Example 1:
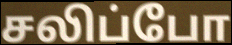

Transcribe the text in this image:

சலிப்போ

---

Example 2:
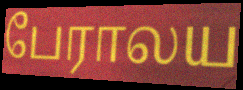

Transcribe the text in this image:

பேராலய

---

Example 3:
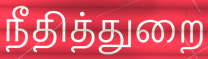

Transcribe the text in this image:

நீதித்துறை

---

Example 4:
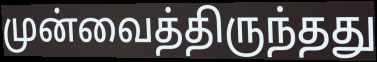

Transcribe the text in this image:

முன்வைத்திருந்தது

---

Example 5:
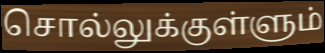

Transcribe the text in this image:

சொல்லுக்குள்ளும்